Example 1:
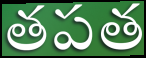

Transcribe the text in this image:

తపత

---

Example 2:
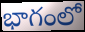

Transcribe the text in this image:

భాగంలో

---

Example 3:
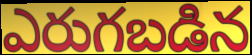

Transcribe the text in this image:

ఎరుగబడిన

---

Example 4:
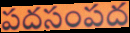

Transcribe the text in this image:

పదసంపద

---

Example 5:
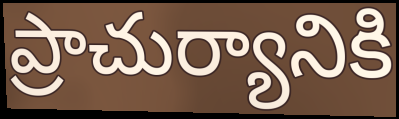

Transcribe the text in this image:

ప్రాచుర్యానికి